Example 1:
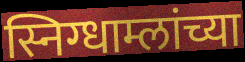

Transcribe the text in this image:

स्निग्धाम्लांच्या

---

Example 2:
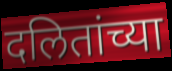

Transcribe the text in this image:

दलितांच्या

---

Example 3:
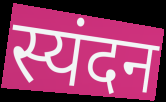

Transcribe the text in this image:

स्यंदन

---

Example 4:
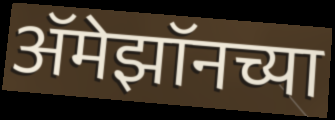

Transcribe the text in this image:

ॲमेझॉनच्या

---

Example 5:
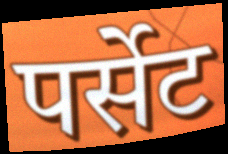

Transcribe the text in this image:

पर्सेट